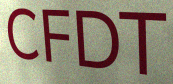
CFDT